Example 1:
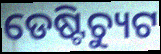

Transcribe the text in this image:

ଡେଷ୍ଟିଚ୍ୟୁଟ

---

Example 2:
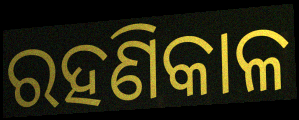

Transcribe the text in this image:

ରହଣିକାଳ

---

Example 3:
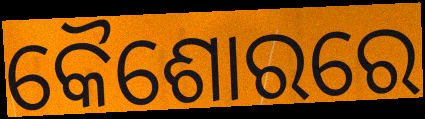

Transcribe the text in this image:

କୈଶୋରରେ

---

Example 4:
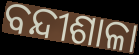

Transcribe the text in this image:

ବନ୍ଦୀଶାଳା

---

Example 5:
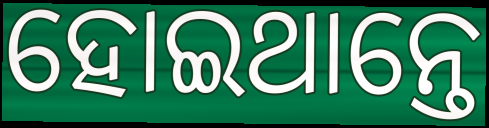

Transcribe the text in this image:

ହୋଇଥାନ୍ତେ